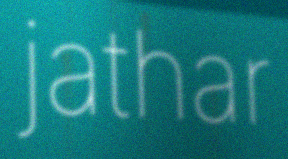
jathar